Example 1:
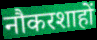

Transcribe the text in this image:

नौकरशाहों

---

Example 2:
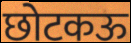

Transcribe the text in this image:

छोटकऊ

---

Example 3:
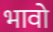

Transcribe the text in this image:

भावो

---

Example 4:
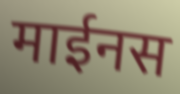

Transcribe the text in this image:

माईनस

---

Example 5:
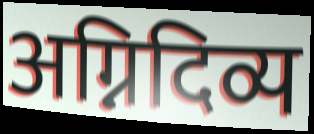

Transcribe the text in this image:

अग्निदिव्य